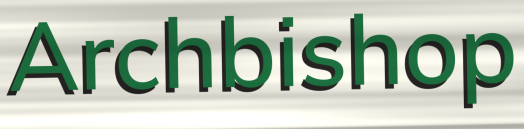
Archbishop